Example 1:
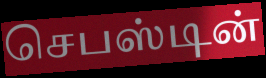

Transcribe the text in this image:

செபஸ்டின்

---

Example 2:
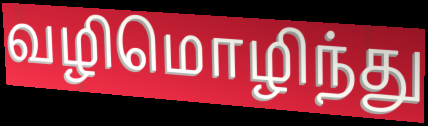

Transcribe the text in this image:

வழிமொழிந்து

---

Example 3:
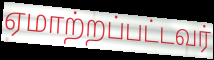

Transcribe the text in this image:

ஏமாற்றப்பட்டவர்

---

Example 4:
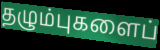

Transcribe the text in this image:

தழும்புகளைப்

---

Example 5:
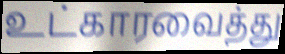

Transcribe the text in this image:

உட்காரவைத்து